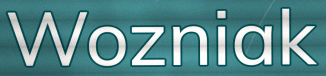
Wozniak